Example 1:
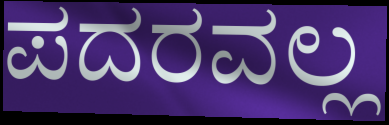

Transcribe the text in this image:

ಪದರವಲ್ಲ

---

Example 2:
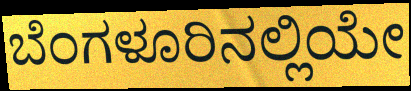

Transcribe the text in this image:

ಬೆಂಗಳೂರಿನಲ್ಲಿಯೇ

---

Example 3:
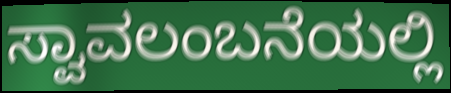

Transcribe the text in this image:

ಸ್ವಾವಲಂಬನೆಯಲ್ಲಿ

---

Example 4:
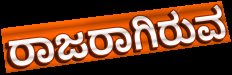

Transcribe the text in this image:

ರಾಜರಾಗಿರುವ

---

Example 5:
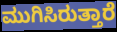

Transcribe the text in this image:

ಮುಗಿಸಿರುತ್ತಾರೆ